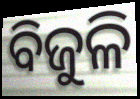
ବିଜୁଳି